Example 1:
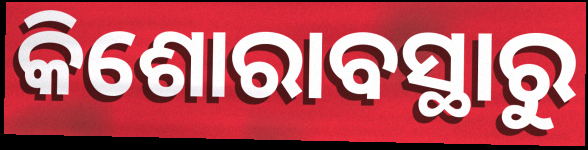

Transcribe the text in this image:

କିଶୋରାବସ୍ଥାରୁ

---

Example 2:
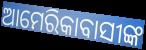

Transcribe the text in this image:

ଆମେରିକାବାସୀଙ୍କ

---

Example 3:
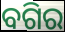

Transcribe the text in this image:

ବଗିର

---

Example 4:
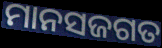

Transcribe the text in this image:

ମାନସଜଗତ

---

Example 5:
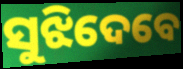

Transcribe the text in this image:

ସୁଝିଦେବେ